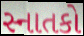
સ્નાતકો